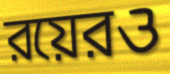
রয়েরও